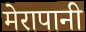
मेरापानी